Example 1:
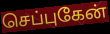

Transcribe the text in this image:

செப்புகேன்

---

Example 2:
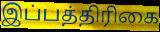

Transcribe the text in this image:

இப்பத்திரிகை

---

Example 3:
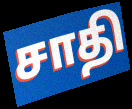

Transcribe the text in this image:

சாதி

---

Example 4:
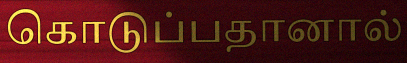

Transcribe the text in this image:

கொடுப்பதானால்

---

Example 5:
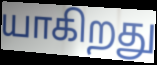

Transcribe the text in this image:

யாகிறது